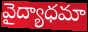
వైద్యాధమా